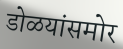
डोळयांसमोर